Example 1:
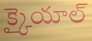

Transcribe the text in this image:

క్కైయాల్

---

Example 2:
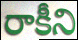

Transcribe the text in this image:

రాకీని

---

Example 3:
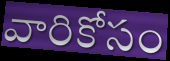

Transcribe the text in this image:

వారికోసం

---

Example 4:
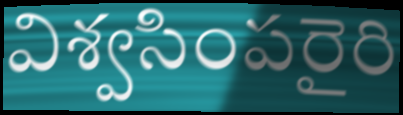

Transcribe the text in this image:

విశ్వసింపరైరి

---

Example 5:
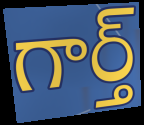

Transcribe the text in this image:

గార్త్